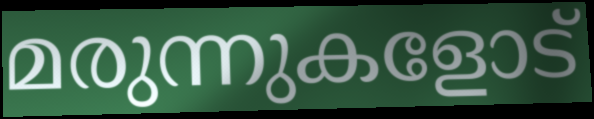
മരുന്നുകളോട്